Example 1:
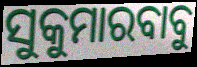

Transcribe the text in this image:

ସୁକୁମାରବାବୁ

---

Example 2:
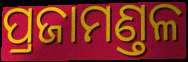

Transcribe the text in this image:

ପ୍ରଜାମଣ୍ତଳ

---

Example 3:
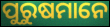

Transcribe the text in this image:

ପୁରୁଷମାନେ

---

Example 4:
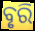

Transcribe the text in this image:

ବୃରି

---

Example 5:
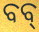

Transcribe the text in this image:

ବବ୍